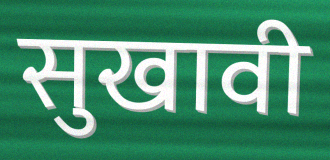
सुखावी